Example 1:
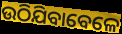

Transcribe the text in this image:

ଉଠିଯିବାବେଳେ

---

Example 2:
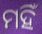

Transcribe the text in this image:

ମହିଁ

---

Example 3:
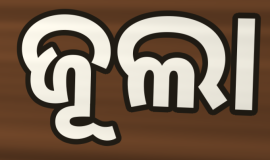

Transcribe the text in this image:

ଜୂଲା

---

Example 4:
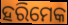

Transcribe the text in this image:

ହରିମେକ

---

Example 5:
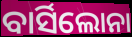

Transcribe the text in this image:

ବାର୍ସିଲୋନା